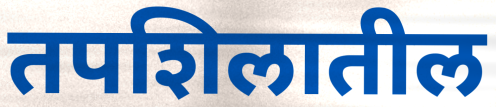
तपशिलातील